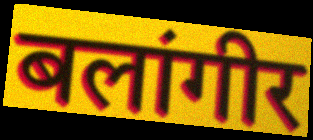
बलांगीर